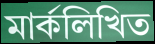
মার্কলিখিত